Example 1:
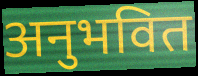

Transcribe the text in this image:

अनुभवित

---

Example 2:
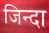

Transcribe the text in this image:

जिन्‍दा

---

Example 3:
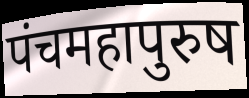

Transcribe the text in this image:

पंचमहापुरुष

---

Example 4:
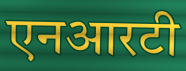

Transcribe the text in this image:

एनआरटी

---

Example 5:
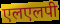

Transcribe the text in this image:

एलएलपी